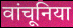
वांचूनिया